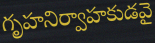
గృహనిర్వాహకుడవై